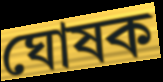
ঘোষক